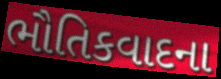
ભૌતિકવાદના